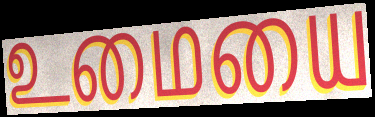
உமையை